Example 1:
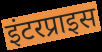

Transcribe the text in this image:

इंटरप्राइस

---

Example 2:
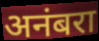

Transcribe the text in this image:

अनंबरा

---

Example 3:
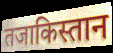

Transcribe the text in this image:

तजाकिस्‍तान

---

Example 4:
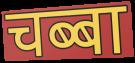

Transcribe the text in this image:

चब्बा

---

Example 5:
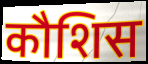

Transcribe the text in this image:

कौशिस